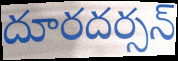
దూరదర్సన్